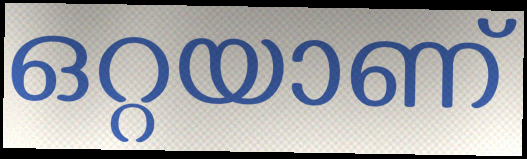
ഒറ്റയാണ്